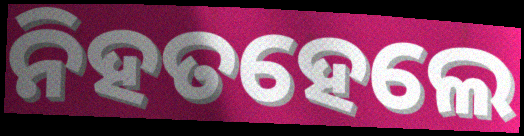
ନିହତହେଲେ